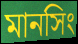
মানসিং